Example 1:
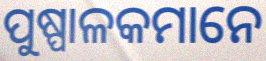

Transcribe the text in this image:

ପୁଷ୍ପାଳକମାନେ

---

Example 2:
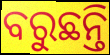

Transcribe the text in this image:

ବରୁଛନ୍ତି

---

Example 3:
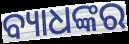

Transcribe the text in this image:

ବ୍ୟାଧଙ୍କର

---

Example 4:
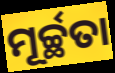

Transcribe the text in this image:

ମୂର୍ଚ୍ଛତା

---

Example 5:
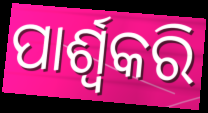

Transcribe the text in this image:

ପାର୍ଶ୍ଵକରି